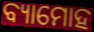
ବ୍ୟାମୋହ